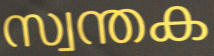
സ്വന്തക